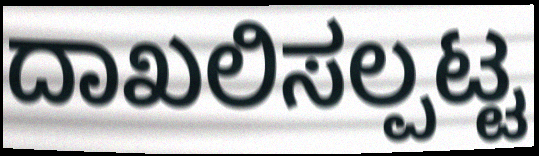
ದಾಖಲಿಸಲ್ಪಟ್ಟ